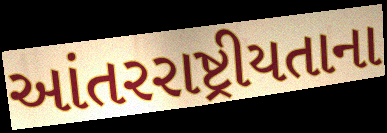
આંતરરાષ્ટ્રીયતાના